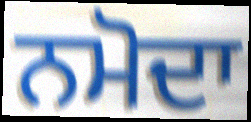
ਨਮੋਦਾ